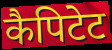
कैपिटेट